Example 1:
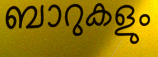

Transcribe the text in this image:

ബാറുകളും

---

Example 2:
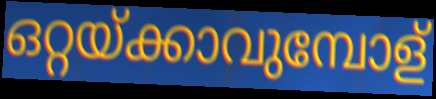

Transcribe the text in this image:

ഒറ്റയ്ക്കാവുമ്പോള്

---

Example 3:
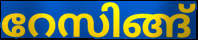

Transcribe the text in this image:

റേസിങ്ങ്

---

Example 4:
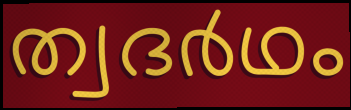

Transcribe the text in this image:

ത്വദർഥം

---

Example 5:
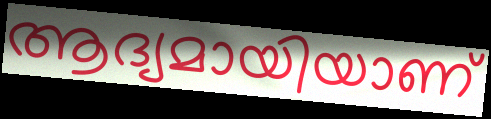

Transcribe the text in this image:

ആദ്യമായിയാണ്